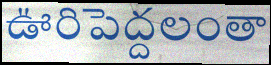
ఊరిపెద్దలంతా